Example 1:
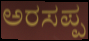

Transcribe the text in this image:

ಅರಸಪ್ಪ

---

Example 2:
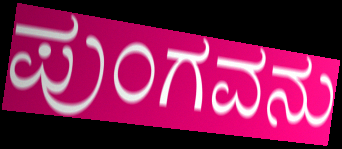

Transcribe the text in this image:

ಪುಂಗವನು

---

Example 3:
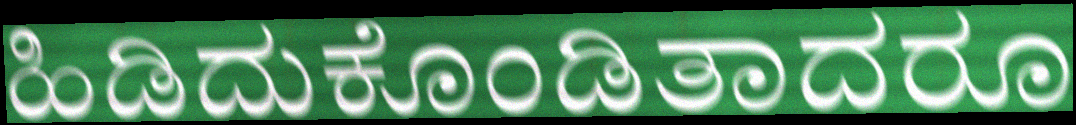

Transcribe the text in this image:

ಹಿಡಿದುಕೊಂಡಿತಾದರೂ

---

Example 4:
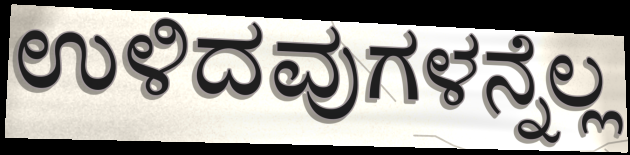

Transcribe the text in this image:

ಉಳಿದವುಗಳನ್ನೆಲ್ಲ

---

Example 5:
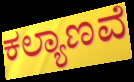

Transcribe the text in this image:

ಕಲ್ಯಾಣವೆ